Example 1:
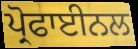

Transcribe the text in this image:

ਪ੍ਰੋਫਾਈਨਲ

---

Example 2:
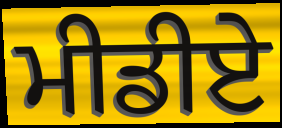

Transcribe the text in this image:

ਮੀਡੀਏ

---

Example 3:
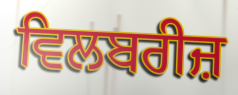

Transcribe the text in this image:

ਵਿਲਬਰੀਜ਼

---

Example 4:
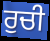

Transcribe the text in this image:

ਰੁਚੀ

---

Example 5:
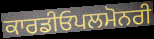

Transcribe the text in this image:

ਕਾਰਡੀਓਪਲਮੋਨਰੀ